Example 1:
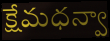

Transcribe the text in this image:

క్షేమధన్వా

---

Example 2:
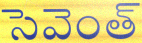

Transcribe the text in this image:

సెవెంత్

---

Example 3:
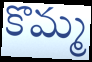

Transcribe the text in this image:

కొమ్మ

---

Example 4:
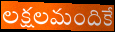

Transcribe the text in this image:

లక్షలమందికే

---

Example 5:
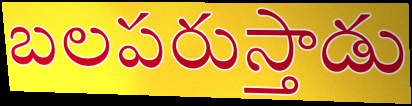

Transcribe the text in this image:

బలపరుస్తాడు